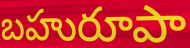
బహురూపా